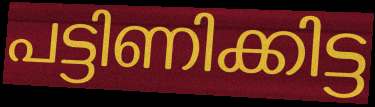
പട്ടിണിക്കിട്ട